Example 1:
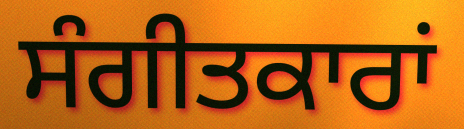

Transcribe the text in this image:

ਸੰਗੀਤਕਾਰਾਂ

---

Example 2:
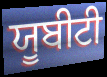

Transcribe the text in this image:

ਯੂਬੀਟੀ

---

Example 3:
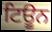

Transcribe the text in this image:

ਟਿਊਨ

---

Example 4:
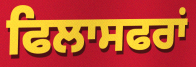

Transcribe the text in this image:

ਫਿਲਾਸਫਰਾਂ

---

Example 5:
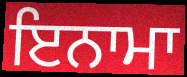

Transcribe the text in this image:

ਇਨਾਮਾ